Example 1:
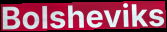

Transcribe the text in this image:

Bolsheviks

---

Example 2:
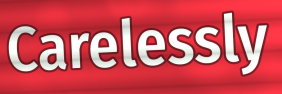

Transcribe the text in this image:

Carelessly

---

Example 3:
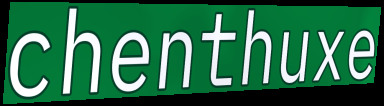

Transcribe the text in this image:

chenthuxe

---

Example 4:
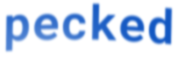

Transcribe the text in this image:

pecked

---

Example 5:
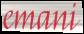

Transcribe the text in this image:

emani